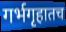
गर्भगृहातच